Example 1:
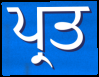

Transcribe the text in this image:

ਪ੍ਰਤ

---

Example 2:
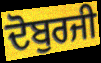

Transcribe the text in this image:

ਦੋਬੁਰਜੀ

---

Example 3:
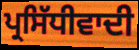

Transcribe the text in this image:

ਪ੍ਰਸਿੱਧੀਵਾਦੀ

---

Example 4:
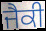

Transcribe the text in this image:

ਜੈਕੀ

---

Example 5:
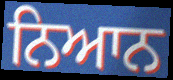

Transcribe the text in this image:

ਨਿਆਨ